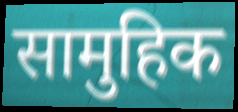
सामुहिक